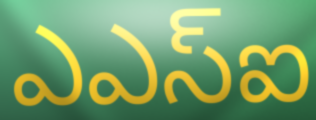
ఎఎస్ఐ